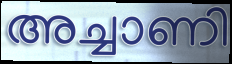
അച്ചാണി